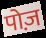
पोज़